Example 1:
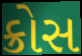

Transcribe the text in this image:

ક્રોસ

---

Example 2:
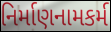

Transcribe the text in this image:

નિર્માણનામકર્મ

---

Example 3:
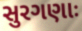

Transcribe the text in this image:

સુરગણાઃ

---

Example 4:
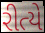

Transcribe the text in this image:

રીત્યે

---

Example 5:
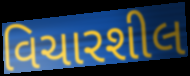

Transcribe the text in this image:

વિચારશીલ